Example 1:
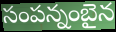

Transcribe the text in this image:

సంపన్నంబైన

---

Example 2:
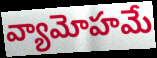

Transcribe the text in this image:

వ్యామోహమే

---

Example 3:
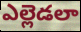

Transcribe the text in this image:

ఎల్లెడలా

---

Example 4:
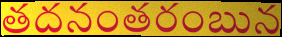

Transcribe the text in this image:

తదనంతరంబున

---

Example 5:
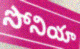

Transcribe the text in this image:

సోనియా